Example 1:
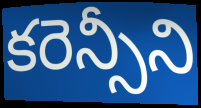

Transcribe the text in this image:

కరెన్సీని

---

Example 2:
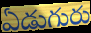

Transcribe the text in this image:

ఏడుగురు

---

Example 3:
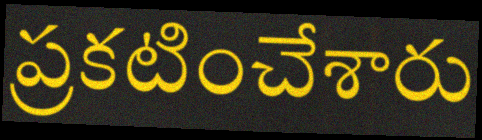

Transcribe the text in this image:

ప్రకటించేశారు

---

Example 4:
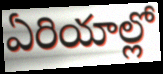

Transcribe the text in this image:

ఏరియాల్లో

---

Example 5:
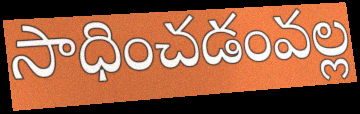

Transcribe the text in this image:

సాధించడంవల్ల